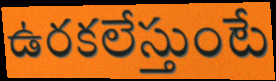
ఉరకలేస్తుంటే